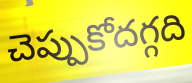
చెప్పుకోదగ్గది